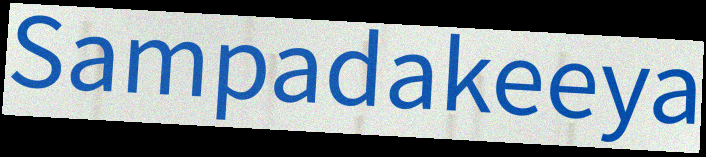
Sampadakeeya